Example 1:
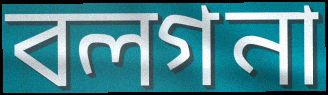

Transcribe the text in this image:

বলগনা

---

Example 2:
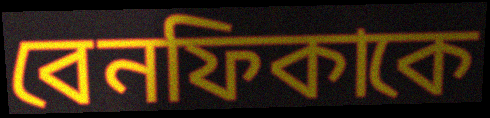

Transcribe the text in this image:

বেনফিকাকে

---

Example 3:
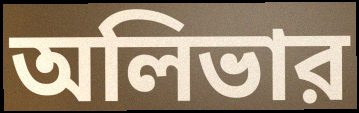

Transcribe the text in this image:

অলিভার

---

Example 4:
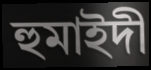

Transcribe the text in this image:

হুমাইদী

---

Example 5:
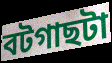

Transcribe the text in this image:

বটগাছটা